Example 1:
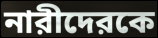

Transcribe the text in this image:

নারীদেরকে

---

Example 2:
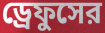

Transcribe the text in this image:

ড্রেফুসের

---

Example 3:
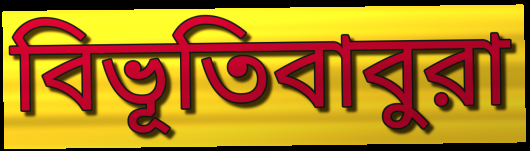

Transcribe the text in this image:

বিভূতিবাবুরা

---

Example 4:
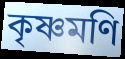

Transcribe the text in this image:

কৃষ্ণমণি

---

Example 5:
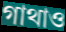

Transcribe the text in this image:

গাথাও